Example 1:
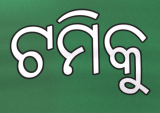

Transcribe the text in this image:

ଟମିକୁ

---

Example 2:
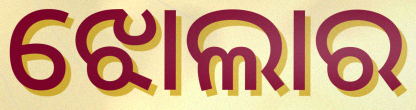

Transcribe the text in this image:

ଝୋଲାର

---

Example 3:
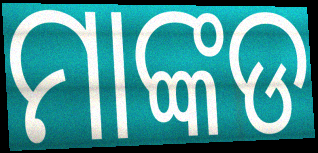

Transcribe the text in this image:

ମାଙ୍କଡ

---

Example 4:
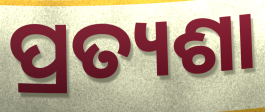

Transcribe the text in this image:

ପ୍ରତ୍ୟଶା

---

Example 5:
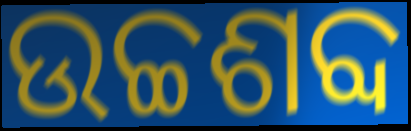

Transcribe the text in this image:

ଉଚ୍ଚଶବ୍ଦ